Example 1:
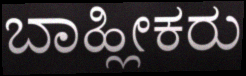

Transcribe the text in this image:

ಬಾಹ್ಲೀಕರು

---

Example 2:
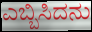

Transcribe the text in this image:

ಎಬ್ಬಿಸಿದನು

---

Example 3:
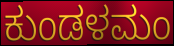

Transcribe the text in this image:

ಕುಂಡಳಮಂ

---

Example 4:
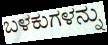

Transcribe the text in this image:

ಬಳಕುಗಳನ್ನು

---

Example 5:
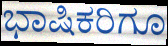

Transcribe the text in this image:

ಭಾಷಿಕರಿಗೂ